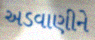
અડવાણીને